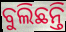
ବୁଲିଛନ୍ତି